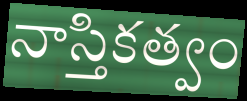
నాస్తికత్వం